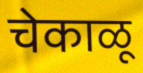
चेकाळू